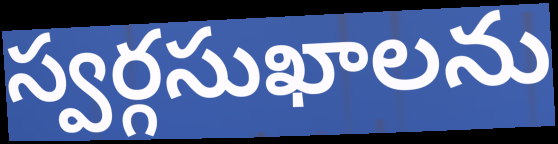
స్వర్గసుఖాలను